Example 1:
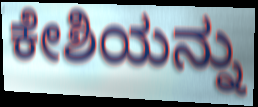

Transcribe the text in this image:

ಕೇಶಿಯನ್ನು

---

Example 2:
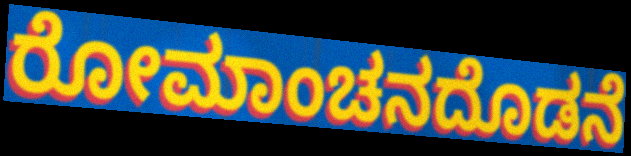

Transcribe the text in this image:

ರೋಮಾಂಚನದೊಡನೆ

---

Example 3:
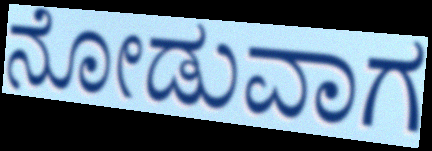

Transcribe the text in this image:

ನೋಡುವಾಗ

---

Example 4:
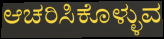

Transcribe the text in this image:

ಆಚರಿಸಿಕೊಳ್ಳುವ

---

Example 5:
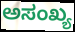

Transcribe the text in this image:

ಅಸಂಖ್ಯ